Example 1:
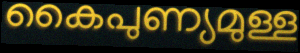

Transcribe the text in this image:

കൈപുണ്യമുള്ള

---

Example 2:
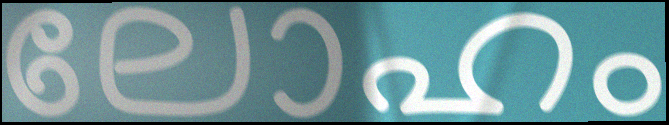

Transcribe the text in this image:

ലോഹം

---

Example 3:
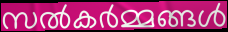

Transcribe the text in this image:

സൽകർമ്മങ്ങൾ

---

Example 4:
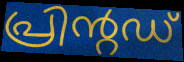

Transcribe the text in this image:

പ്രിന്റഡ്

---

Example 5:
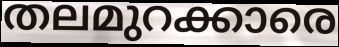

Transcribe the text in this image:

തലമുറക്കാരെ